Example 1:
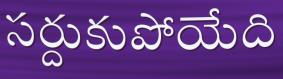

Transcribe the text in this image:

సర్దుకుపోయేది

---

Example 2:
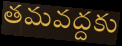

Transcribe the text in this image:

తమవద్దకు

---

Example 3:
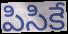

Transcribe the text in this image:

పిసికే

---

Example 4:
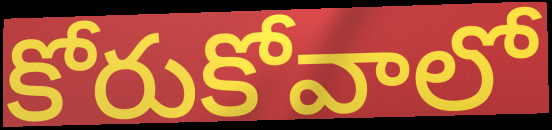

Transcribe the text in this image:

కోరుకోవాలో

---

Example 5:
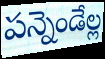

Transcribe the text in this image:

పన్నెండేల్ల